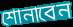
শোনাবেন